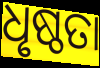
ଧୃଷ୍ଠତା